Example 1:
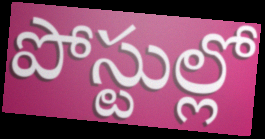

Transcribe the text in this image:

పోస్టుల్లో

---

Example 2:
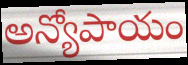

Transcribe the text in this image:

అన్యోపాయం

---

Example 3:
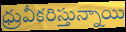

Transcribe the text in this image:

ధ్రువీకరిస్తున్నాయి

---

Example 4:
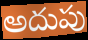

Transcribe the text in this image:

అదుపు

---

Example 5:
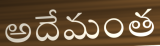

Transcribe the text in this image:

అదేమంత